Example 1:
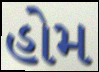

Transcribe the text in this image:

હોમ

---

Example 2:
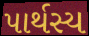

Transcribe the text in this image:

પાર્થસ્ય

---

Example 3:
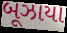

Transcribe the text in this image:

બૂઝાયા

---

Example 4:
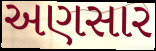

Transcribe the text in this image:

અણસાર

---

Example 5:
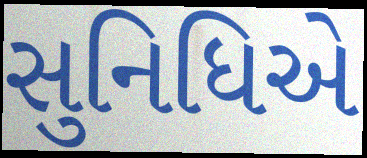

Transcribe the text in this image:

સુનિધિએ